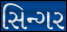
સિન્ગર